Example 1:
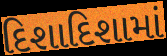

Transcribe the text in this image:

દિશાદિશામાં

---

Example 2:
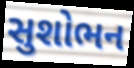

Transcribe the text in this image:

સુશોભન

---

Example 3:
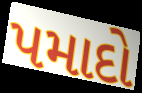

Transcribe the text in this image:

પમાદો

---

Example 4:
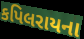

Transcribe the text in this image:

કપિલરાયના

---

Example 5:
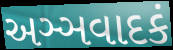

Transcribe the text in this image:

અઞ્ઞવાદકં